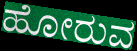
ಹೋರುವ